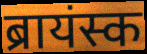
ब्रायंस्क